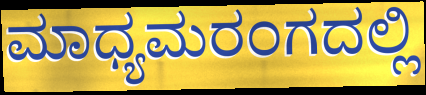
ಮಾಧ್ಯಮರಂಗದಲ್ಲಿ